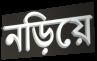
নড়িয়ে